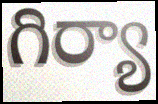
గిర్యా